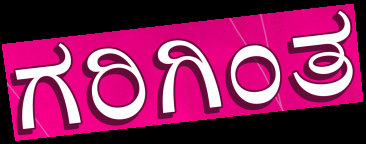
ಗರಿಗಿಂತ